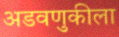
अडवणुकीला